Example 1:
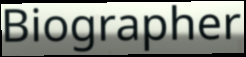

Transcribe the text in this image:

Biographer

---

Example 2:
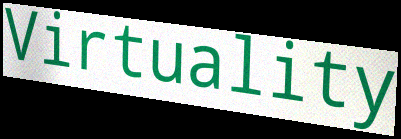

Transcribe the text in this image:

Virtuality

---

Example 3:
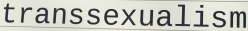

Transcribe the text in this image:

transsexualism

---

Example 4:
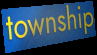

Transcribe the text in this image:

township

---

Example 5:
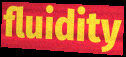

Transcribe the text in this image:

fluidity